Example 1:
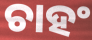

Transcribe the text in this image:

ଚାହଂ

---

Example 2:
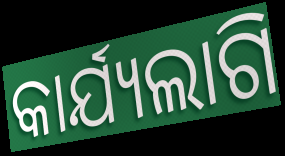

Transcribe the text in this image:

କାର୍ଯ୍ୟଲାଗି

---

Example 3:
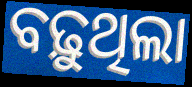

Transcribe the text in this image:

ବଢ଼ୁଥିଲା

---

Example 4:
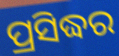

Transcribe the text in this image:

ପ୍ରସିଦ୍ଧର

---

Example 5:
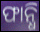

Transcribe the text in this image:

ଫାନ୍ଧି